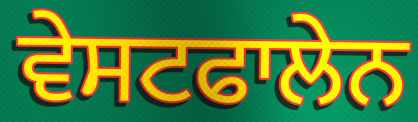
ਵੇਸਟਫਾਲੇਨ